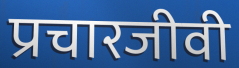
प्रचारजीवी